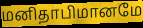
மனிதாபிமானமே